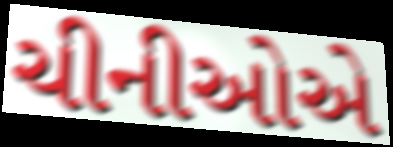
ચીનીઓએ